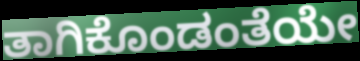
ತಾಗಿಕೊಂಡಂತೆಯೇ